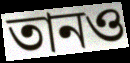
তানও